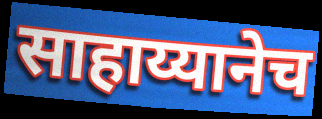
साहाय्यानेच